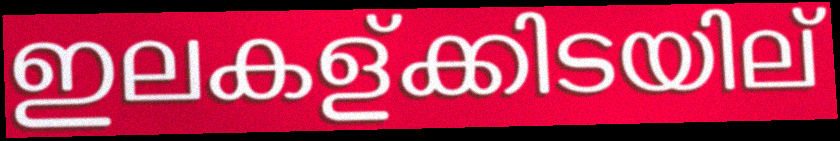
ഇലകള്ക്കിടയില്